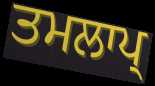
ਤਮਲਾਪ੍